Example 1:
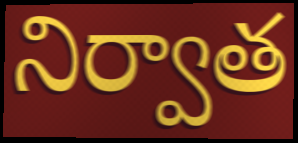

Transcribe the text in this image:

నిర్వాత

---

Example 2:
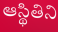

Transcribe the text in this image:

ఆస్థితిని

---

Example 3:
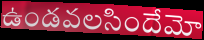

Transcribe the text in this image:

ఉండవలసిందేమో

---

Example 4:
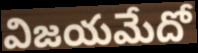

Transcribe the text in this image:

విజయమేదో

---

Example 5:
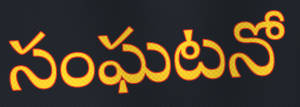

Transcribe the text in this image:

సంఘటనో